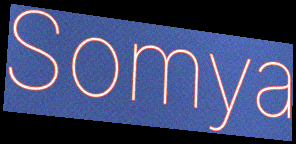
Somya